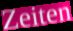
Zeiten